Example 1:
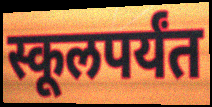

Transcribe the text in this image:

स्कूलपर्यंत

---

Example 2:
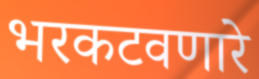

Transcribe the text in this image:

भरकटवणारे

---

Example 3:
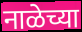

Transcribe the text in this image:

नाळेच्या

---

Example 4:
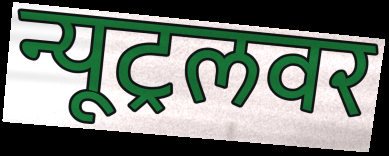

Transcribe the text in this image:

न्यूट्रलवर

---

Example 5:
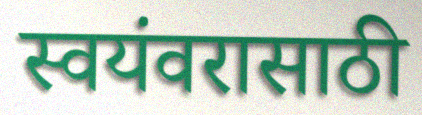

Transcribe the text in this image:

स्वयंवरासाठी